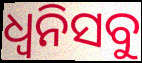
ଧ୍ୱନିସବୁ